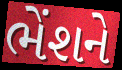
ભેંશને